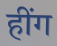
हींग